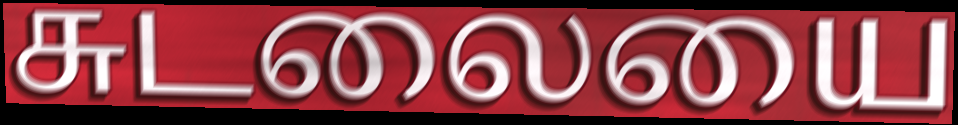
சுடலையை